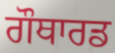
ਗੌਥਾਰਡ